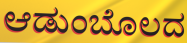
ಆಡುಂಬೊಲದ